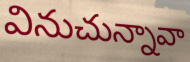
వినుచున్నావా